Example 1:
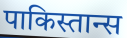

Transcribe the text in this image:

पाकिस्तान्स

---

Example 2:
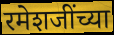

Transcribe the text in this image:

रमेशजींच्या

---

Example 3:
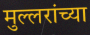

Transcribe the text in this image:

मुल्लरांच्या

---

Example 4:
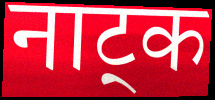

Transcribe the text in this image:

नाट्क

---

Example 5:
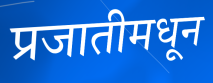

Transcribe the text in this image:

प्रजातीमधून